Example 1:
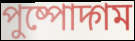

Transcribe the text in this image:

পুষ্পোদ্গম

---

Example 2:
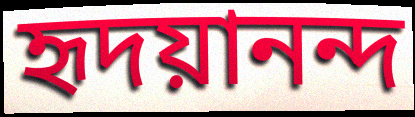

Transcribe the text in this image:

হৃদয়ানন্দ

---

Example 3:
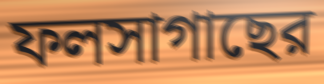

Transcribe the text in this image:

ফলসাগাছের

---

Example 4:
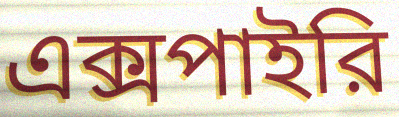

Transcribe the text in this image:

এক্সপাইরি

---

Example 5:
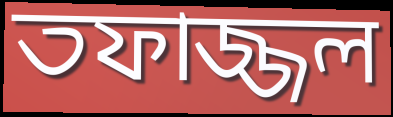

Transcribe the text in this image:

তফাজ্জল